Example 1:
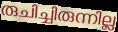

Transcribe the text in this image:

രുചിച്ചിരുന്നില്ല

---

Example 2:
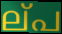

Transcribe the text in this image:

ല്‌പ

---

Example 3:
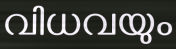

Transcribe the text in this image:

വിധവയും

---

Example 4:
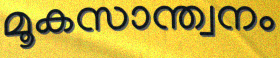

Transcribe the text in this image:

മൂകസാന്ത്വനം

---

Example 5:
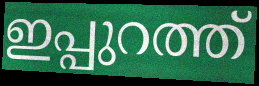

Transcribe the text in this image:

ഇപ്പുറത്ത്